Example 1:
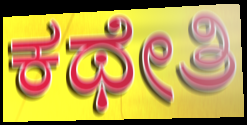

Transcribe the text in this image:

ಕಥೇತಿ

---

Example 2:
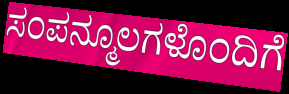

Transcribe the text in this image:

ಸಂಪನ್ಮೂಲಗಳೊಂದಿಗೆ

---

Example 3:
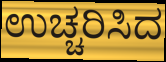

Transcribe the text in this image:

ಉಚ್ಚರಿಸಿದ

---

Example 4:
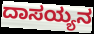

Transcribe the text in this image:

ದಾಸಯ್ಯನ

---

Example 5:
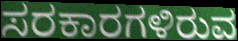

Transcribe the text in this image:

ಸರಕಾರಗಳಿರುವ